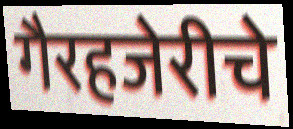
गैरहजेरीचे